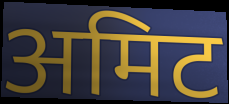
अमिट